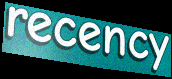
recency